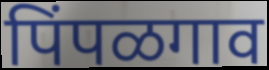
पिंपळगाव